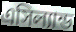
এসিল্যান্ড